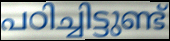
പഠിച്ചിട്ടുണ്ട്